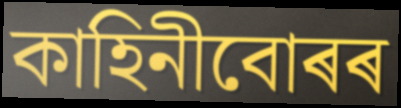
কাহিনীবোৰৰ